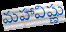
మహావిష్ణు